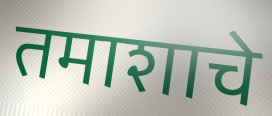
तमाशाचे